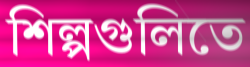
শিল্পগুলিতে